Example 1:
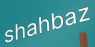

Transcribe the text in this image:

shahbaz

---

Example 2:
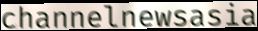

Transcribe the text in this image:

channelnewsasia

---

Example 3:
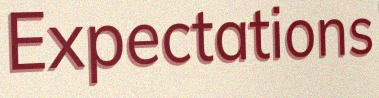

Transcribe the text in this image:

Expectations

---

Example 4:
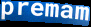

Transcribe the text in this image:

premam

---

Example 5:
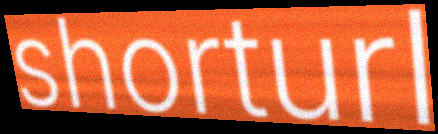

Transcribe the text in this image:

shorturl